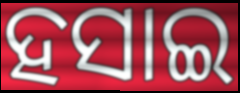
ହସାଇ